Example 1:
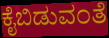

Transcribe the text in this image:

ಕೈಬಿಡುವಂತೆ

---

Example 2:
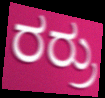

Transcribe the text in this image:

ರರ್ರು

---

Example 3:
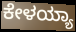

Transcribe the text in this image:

ಕೇಳಯ್ಯಾ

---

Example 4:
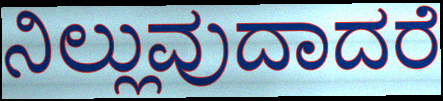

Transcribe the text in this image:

ನಿಲ್ಲುವುದಾದರೆ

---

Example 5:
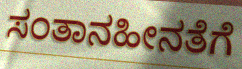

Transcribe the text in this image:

ಸಂತಾನಹೀನತೆಗೆ